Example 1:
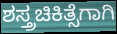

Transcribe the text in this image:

ಶಸ್ತ್ರಚಿಕಿತ್ಸೆಗಾಗಿ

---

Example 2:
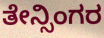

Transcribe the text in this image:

ತೇನ್ಸಿಂಗರ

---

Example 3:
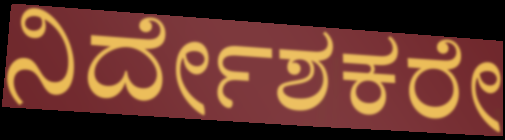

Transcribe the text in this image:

ನಿರ್ದೇಶಕರೇ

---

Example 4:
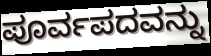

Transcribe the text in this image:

ಪೂರ್ವಪದವನ್ನು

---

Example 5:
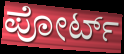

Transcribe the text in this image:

ಪೋರ್ಟ್